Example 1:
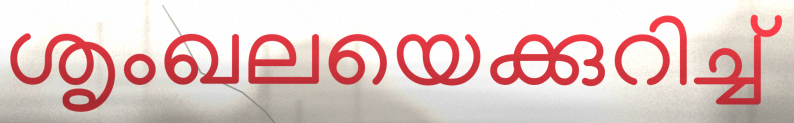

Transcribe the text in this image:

ശൃംഖലയെക്കുറിച്ച്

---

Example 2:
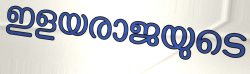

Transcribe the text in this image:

ഇളയരാജയുടെ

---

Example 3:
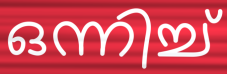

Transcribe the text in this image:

ഒന്നിച്ച്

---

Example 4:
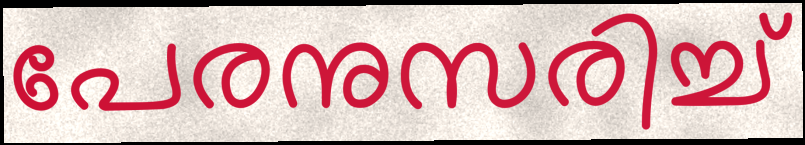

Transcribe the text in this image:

പേരനുസരിച്ച്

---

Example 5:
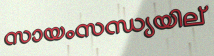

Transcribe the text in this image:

സായംസന്ധ്യയില്